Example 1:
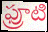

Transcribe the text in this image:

ఫ్రూటి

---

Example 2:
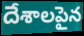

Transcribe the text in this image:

దేశాలపైన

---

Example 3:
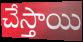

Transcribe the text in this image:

చేస్తాయి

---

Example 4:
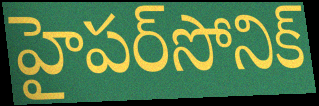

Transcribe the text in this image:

హైపర్‌సోనిక్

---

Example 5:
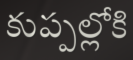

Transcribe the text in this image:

కుప్పల్లోకి